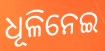
ଧୂଳିନେଇ